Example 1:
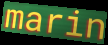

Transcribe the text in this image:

marin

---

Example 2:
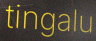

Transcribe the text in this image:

tingalu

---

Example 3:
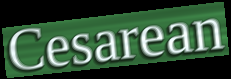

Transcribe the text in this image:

Cesarean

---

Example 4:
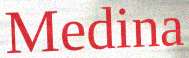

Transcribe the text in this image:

Medina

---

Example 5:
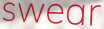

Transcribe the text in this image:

swear